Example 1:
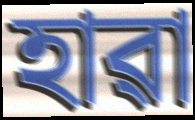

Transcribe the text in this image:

হাৱা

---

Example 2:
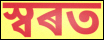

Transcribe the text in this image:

স্বৰত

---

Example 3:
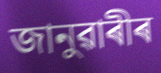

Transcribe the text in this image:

জানুৱাৰীৰ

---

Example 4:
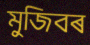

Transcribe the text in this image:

মুজিবৰ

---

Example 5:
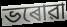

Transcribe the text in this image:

ভৰোৱা